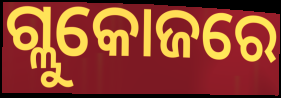
ଗ୍ଲୁକୋଜରେ